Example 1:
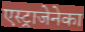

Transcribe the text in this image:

एस्ट्राजेनेका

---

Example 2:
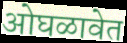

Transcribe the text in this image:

ओघळावेत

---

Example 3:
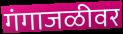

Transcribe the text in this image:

गंगाजळीवर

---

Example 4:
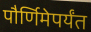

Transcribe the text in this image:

पौर्णिमेपर्यंत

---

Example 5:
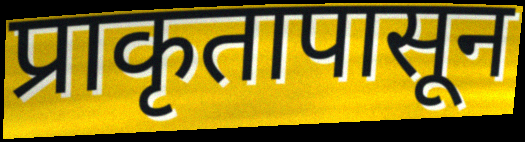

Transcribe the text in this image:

प्राकृतापासून